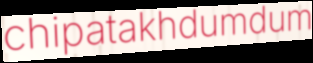
chipatakhdumdum